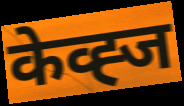
केव्ह्ज